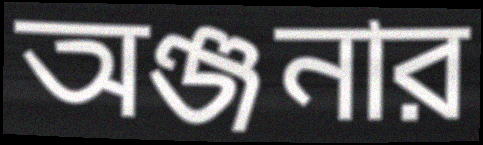
অঞ্জনার